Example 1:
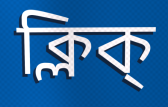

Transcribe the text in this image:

ক্লিক্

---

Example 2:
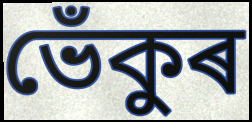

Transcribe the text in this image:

ভেঁকুৰ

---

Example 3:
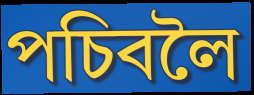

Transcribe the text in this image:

পচিবলৈ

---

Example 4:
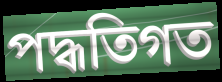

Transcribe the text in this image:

পদ্ধতিগত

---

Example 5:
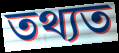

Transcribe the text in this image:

তথ্যত